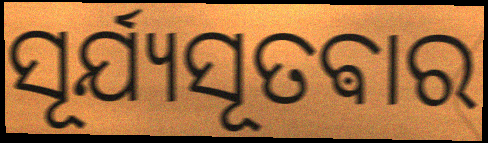
ସୂର୍ଯ୍ଯସୂତଵାର